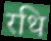
रथि